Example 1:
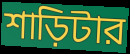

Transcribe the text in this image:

শাড়িটার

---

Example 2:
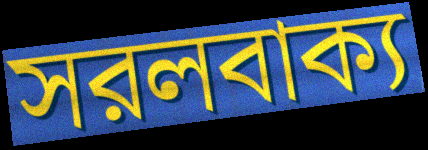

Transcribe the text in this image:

সরলবাক্য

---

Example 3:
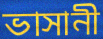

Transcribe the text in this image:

ভাসানী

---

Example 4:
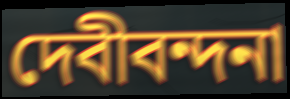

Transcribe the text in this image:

দেবীবন্দনা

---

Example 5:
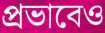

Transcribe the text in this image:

প্রভাবেও